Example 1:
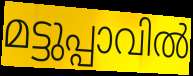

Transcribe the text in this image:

മട്ടുപ്പാവിൽ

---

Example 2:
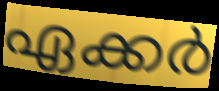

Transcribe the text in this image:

ഏക്കർ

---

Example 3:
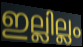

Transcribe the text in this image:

ഇല്ലില്ലം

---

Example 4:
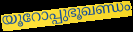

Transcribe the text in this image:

യൂറോപ്പുഭൂഖണ്ഡം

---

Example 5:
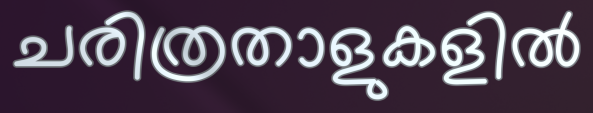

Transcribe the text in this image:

ചരിത്രതാളുകളിൽ